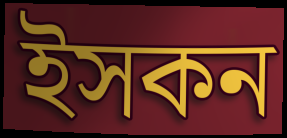
ইসকন